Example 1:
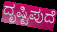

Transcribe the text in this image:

ದೃಷ್ಟಿಪುದೆ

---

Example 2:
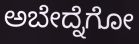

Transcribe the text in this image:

ಅಬೇದ್ನೆಗೋ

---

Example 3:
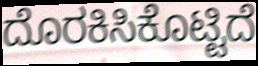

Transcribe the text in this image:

ದೊರಕಿಸಿಕೊಟ್ಟಿದೆ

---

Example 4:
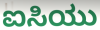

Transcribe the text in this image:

ಐಸಿಯು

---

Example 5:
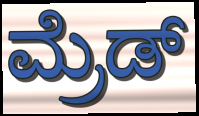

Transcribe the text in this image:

ಮ್ರೆಡ್